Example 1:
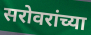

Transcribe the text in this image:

सरोवरांच्या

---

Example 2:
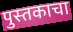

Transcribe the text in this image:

पुस्तकाचा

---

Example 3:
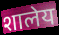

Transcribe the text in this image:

शालेय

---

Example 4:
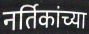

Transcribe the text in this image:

नर्तिकांच्या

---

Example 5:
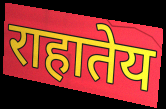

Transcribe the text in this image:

राहातेय